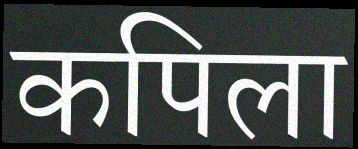
कपिला